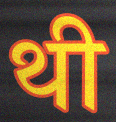
थी